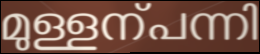
മുള്ളന്പന്നി